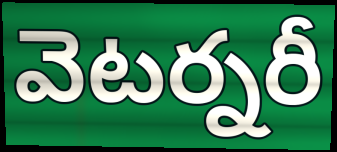
వెటర్నరీ